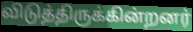
விடுத்திருக்கின்றனர்